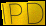
IPD